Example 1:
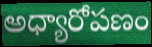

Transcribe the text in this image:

అధ్యారోపణం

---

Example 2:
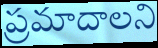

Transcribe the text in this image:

ప్రమాదాలని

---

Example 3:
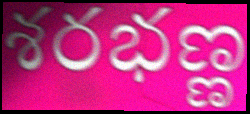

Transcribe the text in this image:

శరభణ్ణ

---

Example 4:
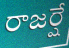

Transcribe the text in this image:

రాజర్షే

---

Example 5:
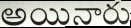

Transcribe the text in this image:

అయినారు